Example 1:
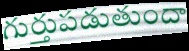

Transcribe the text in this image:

గుర్తుపడుతుందా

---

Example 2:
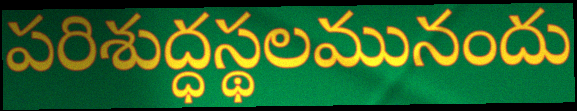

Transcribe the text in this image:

పరిశుద్ధస్థలమునందు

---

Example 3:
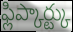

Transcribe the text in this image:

ఫ్లిప్కార్ట్కు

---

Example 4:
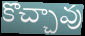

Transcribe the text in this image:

కొచ్చావు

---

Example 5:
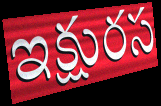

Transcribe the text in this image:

ఇక్షురస